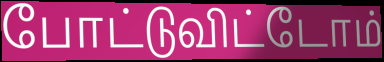
போட்டுவிட்டோம்